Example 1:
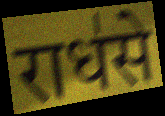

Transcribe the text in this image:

राध॑से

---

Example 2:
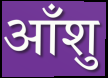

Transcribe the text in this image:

आँशु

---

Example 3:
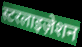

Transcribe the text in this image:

स्टरलाइज़ेशन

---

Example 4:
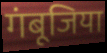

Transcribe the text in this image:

गंबूजिया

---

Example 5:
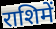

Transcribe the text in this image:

राशिमें